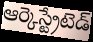
ఆర్కెస్ట్రేటెడ్